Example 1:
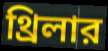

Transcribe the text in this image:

থ্রিলার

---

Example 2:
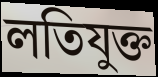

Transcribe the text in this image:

লতিযুক্ত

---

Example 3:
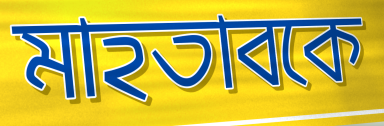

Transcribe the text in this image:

মাহতাবকে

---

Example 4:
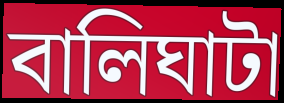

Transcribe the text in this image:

বালিঘাটা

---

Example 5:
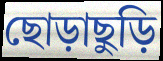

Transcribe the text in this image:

ছোড়াছুড়ি